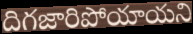
దిగజారిపోయాయని